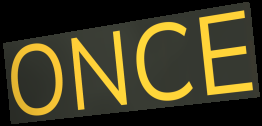
ONCE